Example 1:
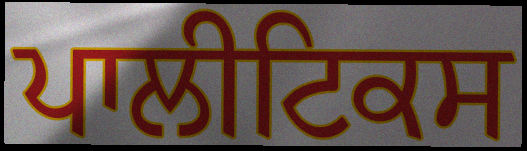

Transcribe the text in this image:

ਪਾਲੀਟਿਕਸ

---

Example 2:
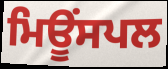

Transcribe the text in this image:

ਮਿਊਂਸਪਲ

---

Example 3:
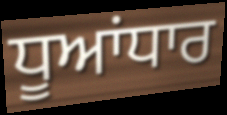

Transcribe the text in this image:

ਧੂਆਂਧਾਰ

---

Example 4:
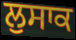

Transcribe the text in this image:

ਲੁਸਾਕ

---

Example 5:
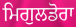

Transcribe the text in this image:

ਮਿਗੁਲਡੋਰਾ